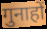
गुनाहों